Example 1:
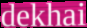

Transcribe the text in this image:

dekhai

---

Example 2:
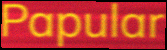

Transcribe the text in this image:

Papular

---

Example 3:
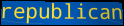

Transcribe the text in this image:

republican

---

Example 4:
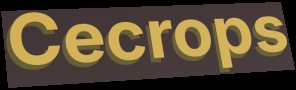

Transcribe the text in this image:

Cecrops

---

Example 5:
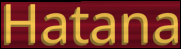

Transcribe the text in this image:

Hatana